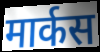
मार्कस